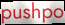
pushpo